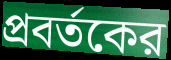
প্রবর্তকের